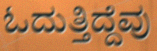
ಓದುತ್ತಿದ್ದೆವು